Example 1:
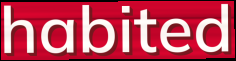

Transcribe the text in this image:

habited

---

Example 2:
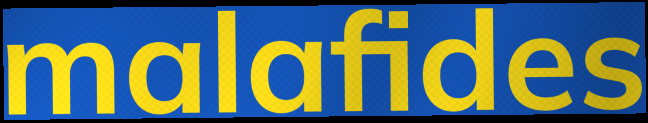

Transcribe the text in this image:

malafides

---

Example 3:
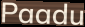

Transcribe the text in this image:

Paadu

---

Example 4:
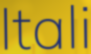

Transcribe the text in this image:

Itali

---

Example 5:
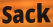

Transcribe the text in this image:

Sack